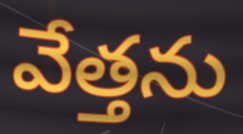
వేత్తను